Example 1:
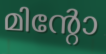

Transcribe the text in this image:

മിന്റോ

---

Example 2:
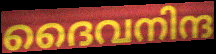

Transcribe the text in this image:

ദൈവനിന്ദ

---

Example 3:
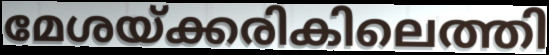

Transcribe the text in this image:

മേശയ്ക്കരികിലെത്തി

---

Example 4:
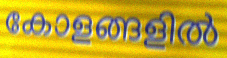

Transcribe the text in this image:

കോളങ്ങളിൽ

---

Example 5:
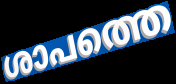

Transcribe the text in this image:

ശാപത്തെ